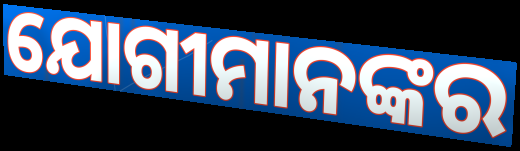
ଯୋଗୀମାନଙ୍କର